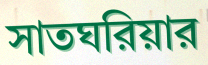
সাতঘরিয়ার